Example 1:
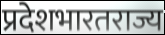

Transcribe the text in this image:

प्रदेशभारतराज्य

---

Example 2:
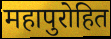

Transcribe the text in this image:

महापुरोहित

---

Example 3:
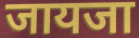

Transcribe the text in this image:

जायजा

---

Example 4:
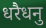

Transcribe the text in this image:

धरैधनु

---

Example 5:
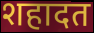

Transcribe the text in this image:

शहादत